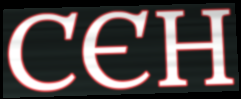
CEH